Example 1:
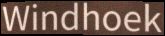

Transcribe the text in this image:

Windhoek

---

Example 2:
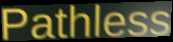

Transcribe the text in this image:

Pathless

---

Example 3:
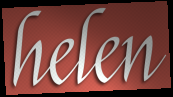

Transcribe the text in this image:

helen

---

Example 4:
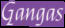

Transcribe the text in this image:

Gangas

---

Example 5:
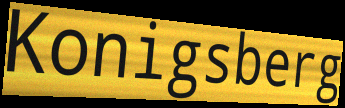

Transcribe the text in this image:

Konigsberg